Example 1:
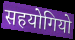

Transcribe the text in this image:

सहयोगियो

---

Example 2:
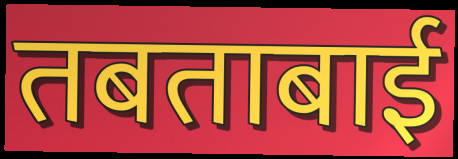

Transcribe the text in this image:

तबताबाई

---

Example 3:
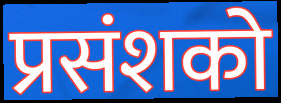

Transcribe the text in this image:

प्रसंशको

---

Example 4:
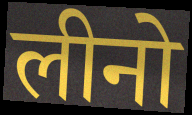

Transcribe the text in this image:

लीनो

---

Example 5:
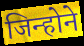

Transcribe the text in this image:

जिन्होने